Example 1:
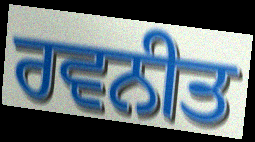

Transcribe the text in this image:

ਰਵਨੀਤ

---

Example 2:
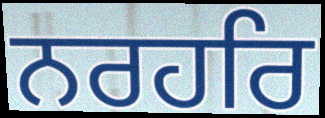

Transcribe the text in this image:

ਨਰਹਰਿ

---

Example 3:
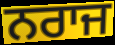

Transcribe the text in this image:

ਨਰਾਜ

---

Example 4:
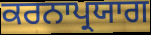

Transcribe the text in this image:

ਕਰਨਾਪ੍ਰਯਾਗ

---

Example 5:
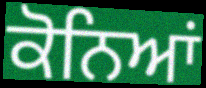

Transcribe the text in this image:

ਕੋਨਿਆਂ